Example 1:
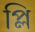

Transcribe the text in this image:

প্লি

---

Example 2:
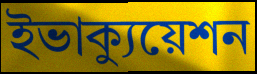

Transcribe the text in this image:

ইভাক্যুয়েশন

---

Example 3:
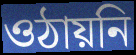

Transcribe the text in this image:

ওঠায়নি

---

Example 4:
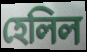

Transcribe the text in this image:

হেলিল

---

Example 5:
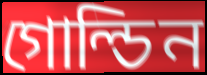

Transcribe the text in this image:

গোল্ডিন